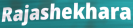
Rajashekhara